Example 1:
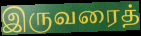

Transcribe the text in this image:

இருவரைத்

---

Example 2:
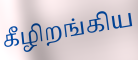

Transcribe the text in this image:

கீழிறங்கிய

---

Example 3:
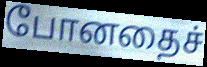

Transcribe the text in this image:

போனதைச்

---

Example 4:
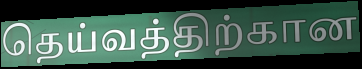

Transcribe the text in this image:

தெய்வத்திற்கான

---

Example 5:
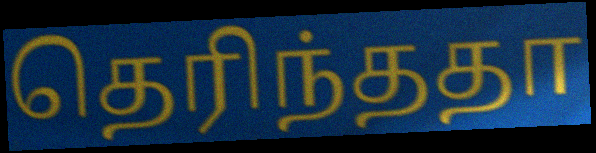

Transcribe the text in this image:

தெரிந்ததா